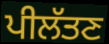
ਪੀਲੱਤਣ